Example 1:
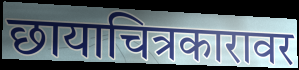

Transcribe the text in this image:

छायाचित्रकारावर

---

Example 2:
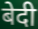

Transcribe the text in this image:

बेदी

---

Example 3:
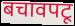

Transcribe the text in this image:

बचावपटू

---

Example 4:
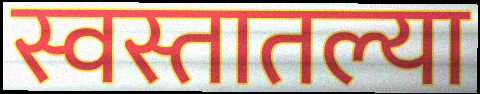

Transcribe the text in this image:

स्वस्तातल्या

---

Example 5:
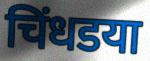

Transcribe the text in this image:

चिंधडया